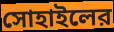
সোহাইলের